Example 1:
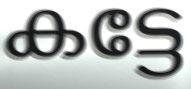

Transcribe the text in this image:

കട്ടേ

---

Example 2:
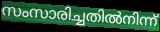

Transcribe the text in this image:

സംസാരിച്ചതിൽനിന്ന്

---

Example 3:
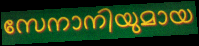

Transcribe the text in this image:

സേനാനിയുമായ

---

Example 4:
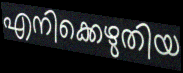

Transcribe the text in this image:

എനിക്കെഴുതിയ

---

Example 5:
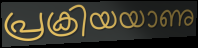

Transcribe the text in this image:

പ്രക്രിയയാണു